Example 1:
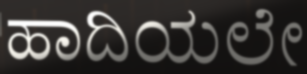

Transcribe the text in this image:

ಹಾದಿಯಲೇ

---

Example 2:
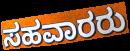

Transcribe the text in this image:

ಸಹವಾರರು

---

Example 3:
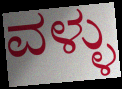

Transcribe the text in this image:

ವಳ್ಳು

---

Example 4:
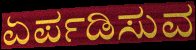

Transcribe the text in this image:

ಏರ್ಪಡಿಸುವ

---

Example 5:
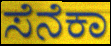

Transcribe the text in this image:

ಸೆನೆಕಾ